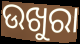
ଉଖୁରା